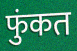
फुंकत